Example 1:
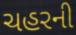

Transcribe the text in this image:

ચહરની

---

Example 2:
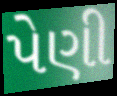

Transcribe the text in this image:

પેણી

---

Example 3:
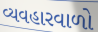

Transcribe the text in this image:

વ્યવહારવાળો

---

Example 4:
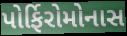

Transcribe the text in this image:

પોર્ફિરોમોનાસ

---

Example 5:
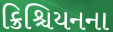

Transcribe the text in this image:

ક્રિશ્ચિયનના